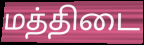
மத்திடை